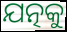
ଯତ୍ନକୁ